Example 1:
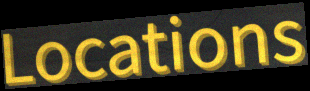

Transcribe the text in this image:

Locations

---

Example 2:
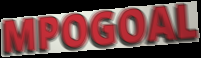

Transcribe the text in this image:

MPOGOAL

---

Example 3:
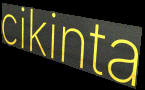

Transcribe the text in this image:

cikinta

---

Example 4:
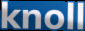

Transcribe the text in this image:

knoll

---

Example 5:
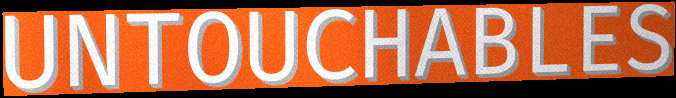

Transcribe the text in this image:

UNTOUCHABLES